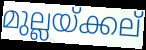
മുല്ലയ്ക്കല്